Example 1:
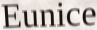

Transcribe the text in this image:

Eunice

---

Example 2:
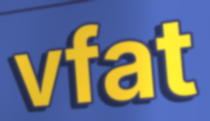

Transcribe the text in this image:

vfat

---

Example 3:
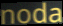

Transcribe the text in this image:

noda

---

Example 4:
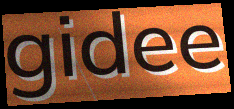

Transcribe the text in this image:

gidee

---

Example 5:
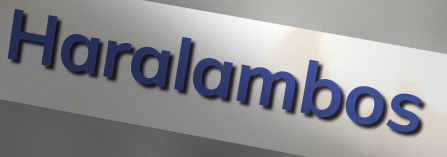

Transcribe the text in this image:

Haralambos